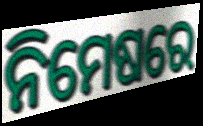
ନିମେଷରେ